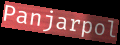
Panjarpol